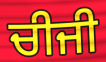
ਚੀਜੀ